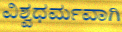
ವಿಶ್ವಧರ್ಮವಾಗಿ